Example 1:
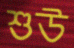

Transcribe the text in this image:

শুউ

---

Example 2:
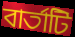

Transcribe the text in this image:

বার্তাটি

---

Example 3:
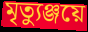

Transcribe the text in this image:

মৃত্যুঞ্জয়ে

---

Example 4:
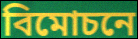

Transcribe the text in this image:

বিমোচনে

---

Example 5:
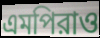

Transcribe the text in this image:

এমপিরাও